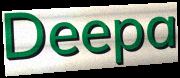
Deepa